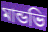
মান্ডভি